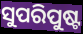
ସୁପରିପୁଷ୍ଟ